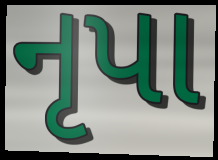
નૃપા